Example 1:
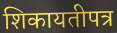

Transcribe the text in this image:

शिकायतीपत्र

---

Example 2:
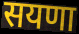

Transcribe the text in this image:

सयणा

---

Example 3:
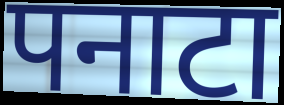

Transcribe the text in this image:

पनाटा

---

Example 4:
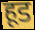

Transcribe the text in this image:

हूड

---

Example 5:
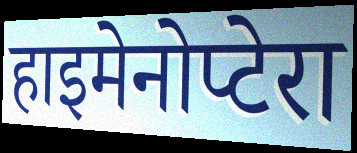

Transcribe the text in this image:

हाइमेनोप्टेरा